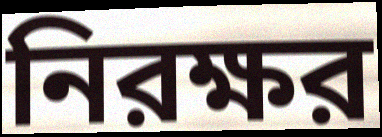
নিরক্ষর